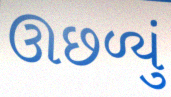
ઊછળ્યું